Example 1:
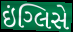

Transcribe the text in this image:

ઇંગ્લિસે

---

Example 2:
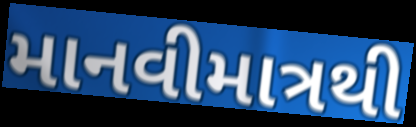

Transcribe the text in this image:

માનવીમાત્રથી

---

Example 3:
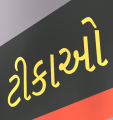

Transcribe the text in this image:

ટીકાઓ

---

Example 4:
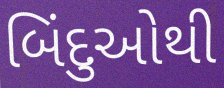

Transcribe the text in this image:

બિંદુઓથી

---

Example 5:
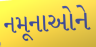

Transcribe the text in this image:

નમૂનાઓને